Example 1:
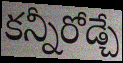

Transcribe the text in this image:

కన్నీరోడ్చే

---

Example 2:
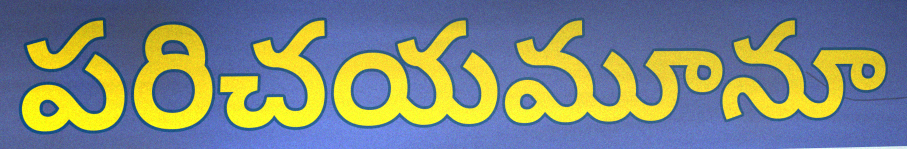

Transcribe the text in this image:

పరిచయమూనూ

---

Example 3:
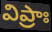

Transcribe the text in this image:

విప్రాః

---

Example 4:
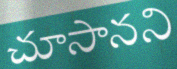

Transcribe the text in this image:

చూసానని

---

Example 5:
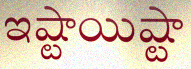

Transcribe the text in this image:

ఇష్టాయిష్టా